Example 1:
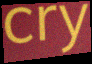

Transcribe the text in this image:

cry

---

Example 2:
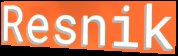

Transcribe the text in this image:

Resnik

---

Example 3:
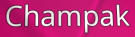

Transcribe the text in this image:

Champak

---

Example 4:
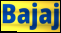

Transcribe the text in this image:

Bajaj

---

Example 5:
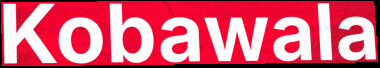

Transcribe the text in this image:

Kobawala